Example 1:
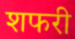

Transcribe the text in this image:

शफरी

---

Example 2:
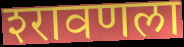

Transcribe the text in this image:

श्रावणला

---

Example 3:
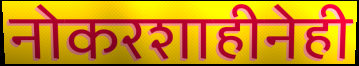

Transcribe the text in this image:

नोकरशाहीनेही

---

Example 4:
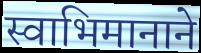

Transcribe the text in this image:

स्वाभिमानाने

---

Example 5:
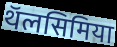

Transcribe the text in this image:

थॅलसिमिया